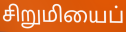
சிறுமியைப்